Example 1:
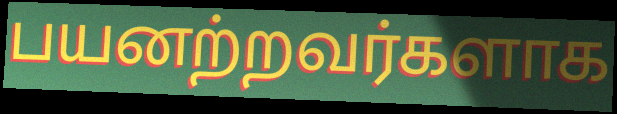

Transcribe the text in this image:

பயனற்றவர்களாக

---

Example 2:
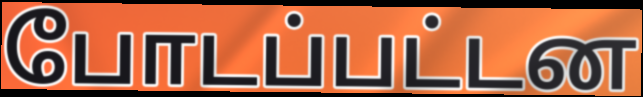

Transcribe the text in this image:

போடப்பட்டன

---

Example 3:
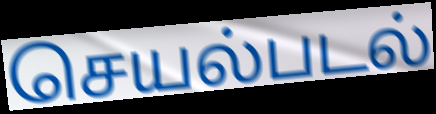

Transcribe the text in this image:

செயல்படல்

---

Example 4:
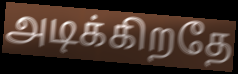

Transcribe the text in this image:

அடிக்கிறதே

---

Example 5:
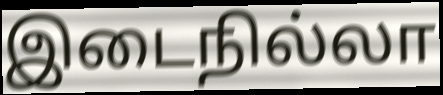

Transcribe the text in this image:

இடைநில்லா